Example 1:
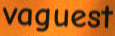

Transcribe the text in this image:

vaguest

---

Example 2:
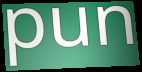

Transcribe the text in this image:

pun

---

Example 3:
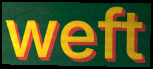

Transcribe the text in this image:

weft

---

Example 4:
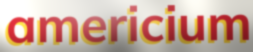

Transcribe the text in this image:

americium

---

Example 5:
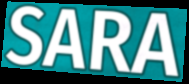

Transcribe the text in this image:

SARA